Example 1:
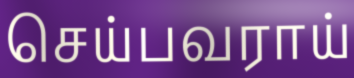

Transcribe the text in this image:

செய்பவராய்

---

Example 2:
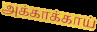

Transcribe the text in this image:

அக்காக்காய்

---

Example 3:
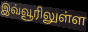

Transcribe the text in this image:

இவ்வூரிலுள்ள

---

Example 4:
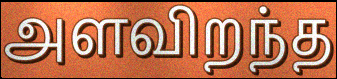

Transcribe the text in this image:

அளவிறந்த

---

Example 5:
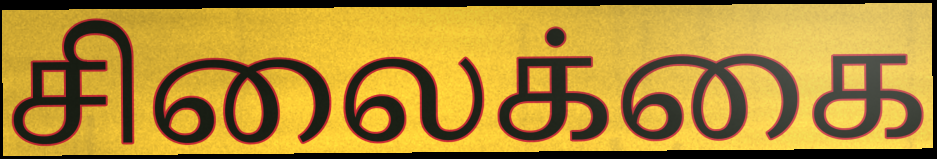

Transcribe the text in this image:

சிலைக்கை